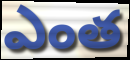
ఎంత